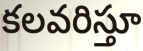
కలవరిస్తూ